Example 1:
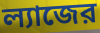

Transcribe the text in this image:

ল্যাজের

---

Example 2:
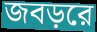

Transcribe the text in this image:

জবড়রে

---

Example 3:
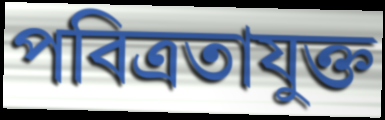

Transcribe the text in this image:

পবিত্রতাযুক্ত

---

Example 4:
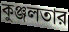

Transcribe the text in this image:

কুঞ্জলতার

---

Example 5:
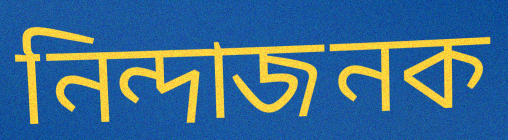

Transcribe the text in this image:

নিন্দাজনক